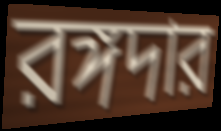
রঙ্গদার